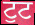
ਟੁਟ